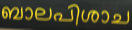
ബാലപിശാച